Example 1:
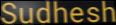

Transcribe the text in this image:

Sudhesh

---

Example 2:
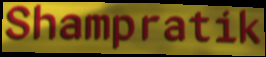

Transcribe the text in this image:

Shampratik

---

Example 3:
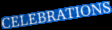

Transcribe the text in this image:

CELEBRATIONS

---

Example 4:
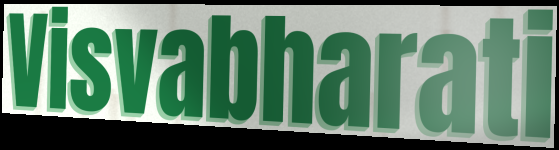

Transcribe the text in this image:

Visvabharati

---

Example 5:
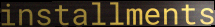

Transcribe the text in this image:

installments